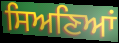
ਸਿਅਣਿਆਂ